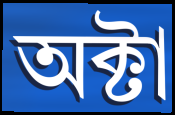
অক্টা